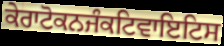
ਕੇਰਾਟੋਕਨਜੰਕਟਿਵਾਇਟਿਸ